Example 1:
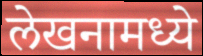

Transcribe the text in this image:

लेखनामध्ये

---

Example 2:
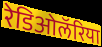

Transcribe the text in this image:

रेडिओलॅरिया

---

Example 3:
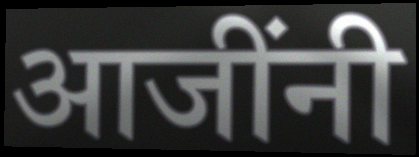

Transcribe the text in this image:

आजींनी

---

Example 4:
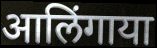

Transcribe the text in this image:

आलिंगाया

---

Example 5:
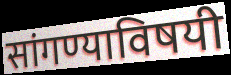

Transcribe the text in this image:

सांगण्याविषयी